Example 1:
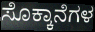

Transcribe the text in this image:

ಸೊಕ್ಕಾನೆಗಳ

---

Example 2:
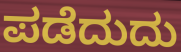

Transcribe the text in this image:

ಪಡೆದುದು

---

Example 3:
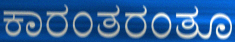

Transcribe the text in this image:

ಕಾರಂತರಂತೂ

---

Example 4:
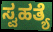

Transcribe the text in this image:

ಸ್ವಹತ್ಯೆ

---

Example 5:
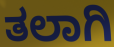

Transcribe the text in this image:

ತಲಾಗಿ